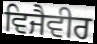
ਵਿਜੈਵੀਰ